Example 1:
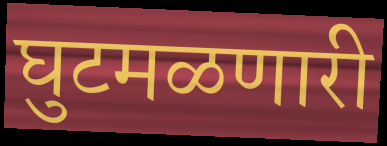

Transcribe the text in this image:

घुटमळणारी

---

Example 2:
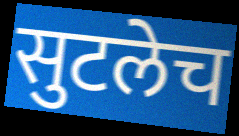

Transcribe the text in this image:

सुटलेच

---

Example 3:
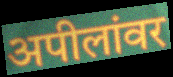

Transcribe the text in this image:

अपीलांवर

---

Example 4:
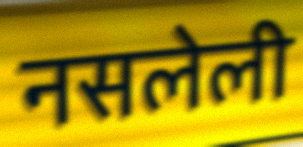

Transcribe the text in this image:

नसलेली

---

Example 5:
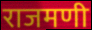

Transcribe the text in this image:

राजमणी